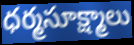
ధర్మసూక్ష్మాలు